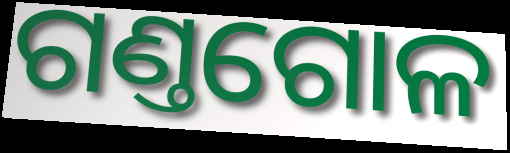
ଗଣ୍ତଗୋଳ